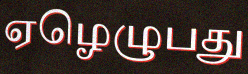
ஏழெழுபது